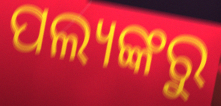
ପଲ୍ୟଙ୍କରୁ